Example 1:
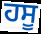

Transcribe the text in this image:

ਹਸੂ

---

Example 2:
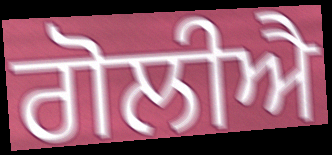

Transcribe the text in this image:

ਗੋਲੀਐ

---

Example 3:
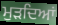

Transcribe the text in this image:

ਮੁੜਦਿਆਂ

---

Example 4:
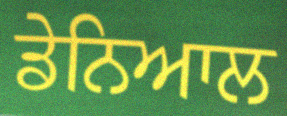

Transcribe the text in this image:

ਡੇਨਿਆਲ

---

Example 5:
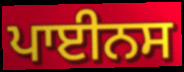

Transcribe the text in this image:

ਪਾਈਨਸ